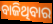
ବାଜିଥିବାର